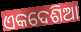
ଏକଦେଶିଆ